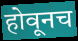
होवूनच